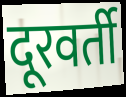
दूरवर्ती